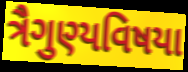
ત્રૈગુણ્યવિષયા